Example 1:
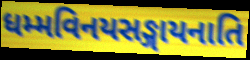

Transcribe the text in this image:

ધમ્મવિનયસઙ્ગાયનાતિ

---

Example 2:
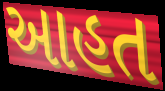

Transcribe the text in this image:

આહત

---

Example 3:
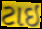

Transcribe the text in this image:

ટાઇ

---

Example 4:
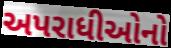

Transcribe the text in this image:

અપરાધીઓનો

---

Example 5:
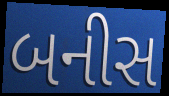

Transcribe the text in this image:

બનીસ